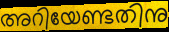
അറിയേണ്ടതിനു